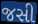
જસી